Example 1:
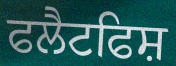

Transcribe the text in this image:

ਫਲੈਟਫਿਸ਼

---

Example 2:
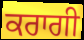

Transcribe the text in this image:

ਕਰਾਗੀ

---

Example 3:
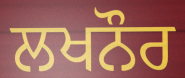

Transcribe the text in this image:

ਲਖਨੌਰ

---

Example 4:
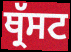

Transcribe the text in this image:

ਥ੍ਰੱਸਟ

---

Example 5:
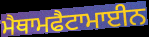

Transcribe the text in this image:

ਮੈਥਾਮਫੈਟਾਮਾਈਨ